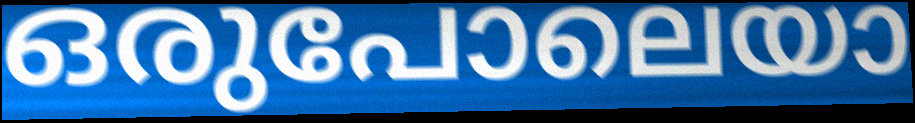
ഒരുപോലെയാ